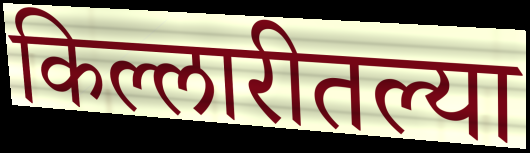
किल्लारीतल्या